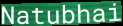
Natubhai